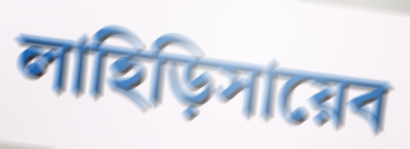
লাহিড়িসায়েব